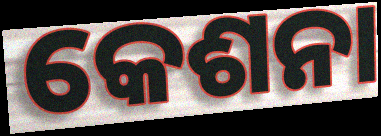
କେଶନା